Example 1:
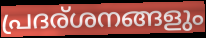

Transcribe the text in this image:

പ്രദര്ശനങ്ങളും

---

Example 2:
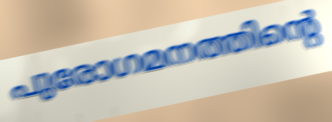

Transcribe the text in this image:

പുരോഗമനത്തിന്റെ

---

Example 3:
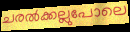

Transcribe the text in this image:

ചരൽക്കല്ലുപോലെ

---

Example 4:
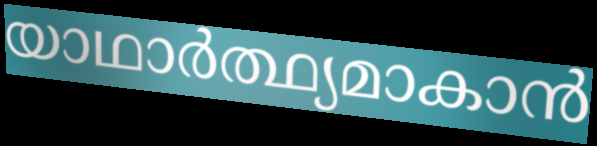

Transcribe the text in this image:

യാഥാർത്ഥ്യമാകാൻ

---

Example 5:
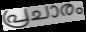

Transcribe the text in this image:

പ്രചാരം